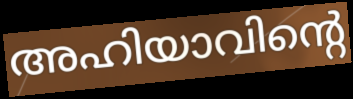
അഹിയാവിന്റെ